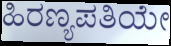
ಹಿರಣ್ಯಪತಿಯೇ